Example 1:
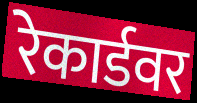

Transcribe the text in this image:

रेकार्डवर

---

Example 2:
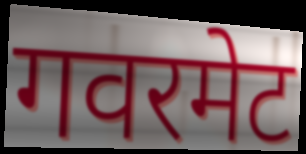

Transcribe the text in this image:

गवरमेट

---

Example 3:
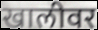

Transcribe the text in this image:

खालीवर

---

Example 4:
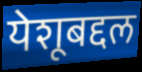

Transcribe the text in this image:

येशूबद्दल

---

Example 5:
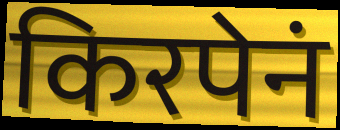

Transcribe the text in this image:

किरपेनं